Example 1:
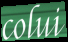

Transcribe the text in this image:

colui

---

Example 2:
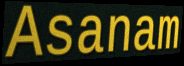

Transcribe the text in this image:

Asanam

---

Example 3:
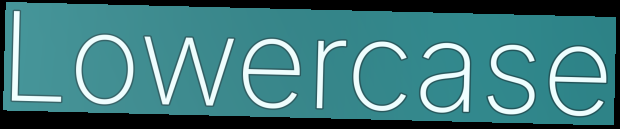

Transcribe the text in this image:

Lowercase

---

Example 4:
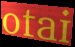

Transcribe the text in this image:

otai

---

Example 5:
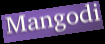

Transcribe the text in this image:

Mangodi